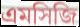
এমসিজি